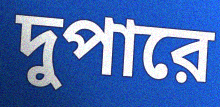
দুপারে